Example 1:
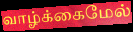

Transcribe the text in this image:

வாழ்க்கைமேல்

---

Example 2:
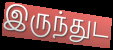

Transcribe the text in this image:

இருந்துட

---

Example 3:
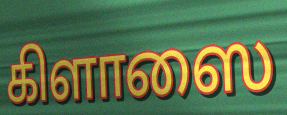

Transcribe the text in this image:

கிளாஸை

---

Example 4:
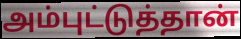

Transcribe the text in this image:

அம்புட்டுத்தான்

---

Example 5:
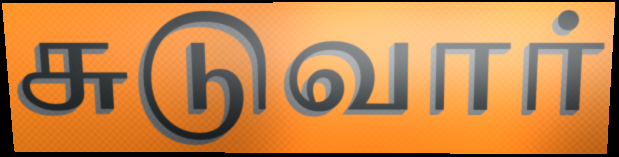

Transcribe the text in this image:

சுடுவார்